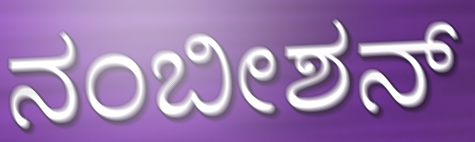
ನಂಬೀಶನ್